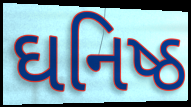
ઘનિષ્ઠ